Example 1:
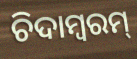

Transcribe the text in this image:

ଚିଦାମ୍ବରମ୍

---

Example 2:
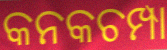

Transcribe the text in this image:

କନକଚମ୍ପା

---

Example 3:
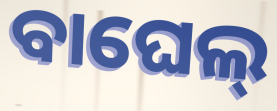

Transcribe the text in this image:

ବାଘେଲ୍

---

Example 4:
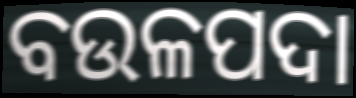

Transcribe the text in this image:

ବଉଳପଦା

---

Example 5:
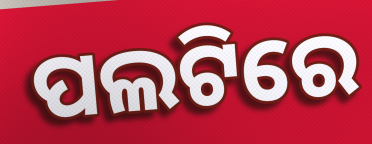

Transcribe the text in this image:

ପଲଟିରେ